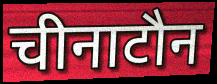
चीनाटौन